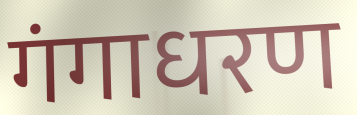
गंगाधरण